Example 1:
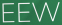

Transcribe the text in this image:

EEW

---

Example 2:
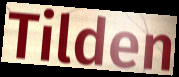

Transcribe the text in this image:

Tilden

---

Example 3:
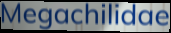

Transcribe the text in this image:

Megachilidae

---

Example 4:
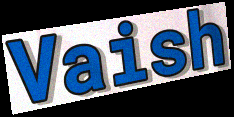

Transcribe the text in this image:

Vaish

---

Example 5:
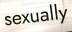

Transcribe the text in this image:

sexually